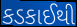
કડકાઈથી